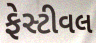
ફેસ્ટીવલ